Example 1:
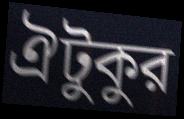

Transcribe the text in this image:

ঐটুকুর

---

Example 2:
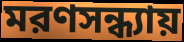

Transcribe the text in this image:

মরণসন্ধ্যায়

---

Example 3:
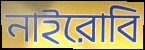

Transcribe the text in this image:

নাইরোবি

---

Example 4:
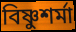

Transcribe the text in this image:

বিষ্ণুশর্মা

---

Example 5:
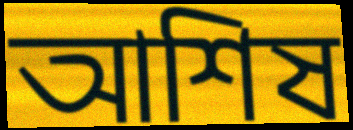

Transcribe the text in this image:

আশিষ